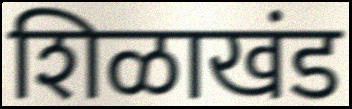
शिळाखंड